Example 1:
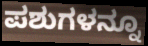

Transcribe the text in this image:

ಪಶುಗಳನ್ನೂ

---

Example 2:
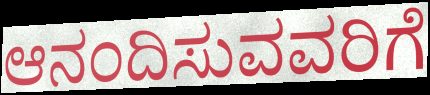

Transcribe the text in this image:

ಆನಂದಿಸುವವರಿಗೆ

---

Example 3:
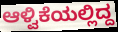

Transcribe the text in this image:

ಆಳ್ವಿಕೆಯಲ್ಲಿದ್ದ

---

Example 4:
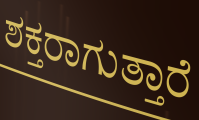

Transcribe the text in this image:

ಶಕ್ತರಾಗುತ್ತಾರೆ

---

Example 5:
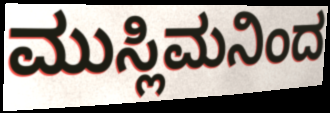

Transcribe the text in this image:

ಮುಸ್ಲಿಮನಿಂದ